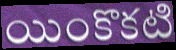
యింకొకటి